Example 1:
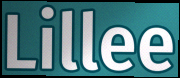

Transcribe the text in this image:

Lillee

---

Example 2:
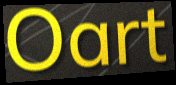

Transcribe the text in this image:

Oart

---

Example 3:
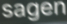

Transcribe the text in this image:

sagen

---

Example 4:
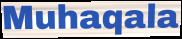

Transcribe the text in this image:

Muhaqala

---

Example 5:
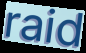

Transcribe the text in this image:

raid